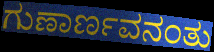
ಗುಣಾರ್ಣವನಂತು